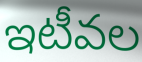
ఇటీవల